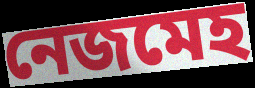
নেজমেহ